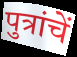
पुत्रांचें